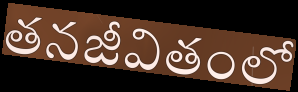
తనజీవితంలో